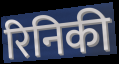
रिनिकी